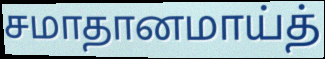
சமாதானமாய்த்